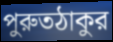
পুরুতঠাকুর